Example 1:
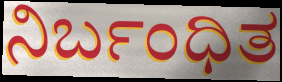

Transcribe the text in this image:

ನಿರ್ಬಂಧಿತ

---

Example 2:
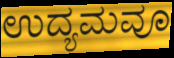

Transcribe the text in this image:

ಉದ್ಯಮವೂ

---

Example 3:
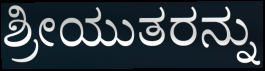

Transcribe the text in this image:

ಶ್ರೀಯುತರನ್ನು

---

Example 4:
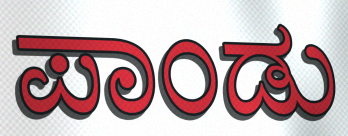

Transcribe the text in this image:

ಪಾಂಡು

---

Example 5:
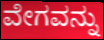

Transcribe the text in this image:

ವೇಗವನ್ನು